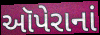
ઑપેરાનાં